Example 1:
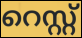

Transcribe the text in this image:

റെസ്റ്റ്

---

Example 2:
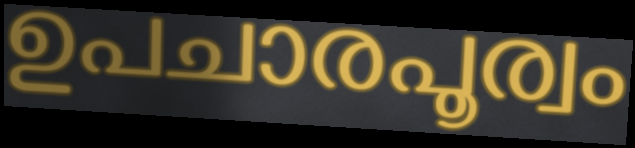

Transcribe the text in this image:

ഉപചാരപൂര്വം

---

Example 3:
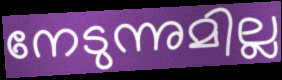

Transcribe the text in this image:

നേടുന്നുമില്ല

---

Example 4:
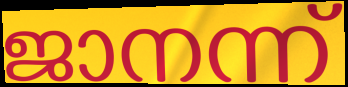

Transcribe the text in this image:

ജാനന്ന്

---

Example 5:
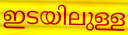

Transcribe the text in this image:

ഇടയിലുള്ള